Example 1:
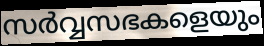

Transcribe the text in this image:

സർവ്വസഭകളെയും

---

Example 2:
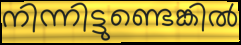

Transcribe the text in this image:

നിന്നിട്ടുണ്ടെങ്കിൽ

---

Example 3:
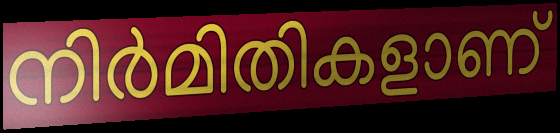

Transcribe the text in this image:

നിർമിതികളാണ്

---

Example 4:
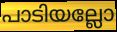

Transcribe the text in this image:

പാടിയല്ലോ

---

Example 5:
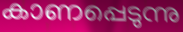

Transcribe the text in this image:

കാണപ്പെടുന്നു